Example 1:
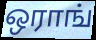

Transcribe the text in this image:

ஒராங்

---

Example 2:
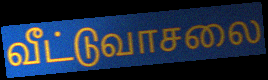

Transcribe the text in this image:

வீட்டுவாசலை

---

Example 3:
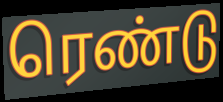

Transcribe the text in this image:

ரெண்டு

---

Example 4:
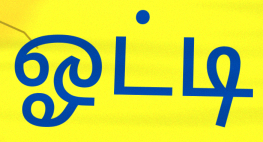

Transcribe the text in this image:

ஓட்டி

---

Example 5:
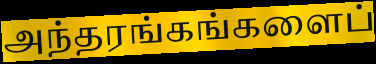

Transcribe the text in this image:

அந்தரங்கங்களைப்